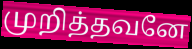
முறித்தவனே